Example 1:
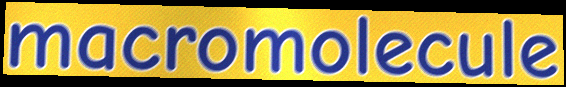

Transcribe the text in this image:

macromolecule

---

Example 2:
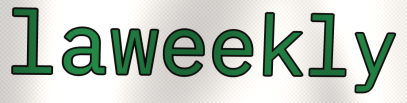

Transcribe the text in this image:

laweekly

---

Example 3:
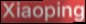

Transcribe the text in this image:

Xiaoping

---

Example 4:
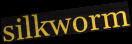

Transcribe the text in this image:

silkworm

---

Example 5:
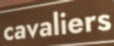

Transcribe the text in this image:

cavaliers